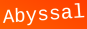
Abyssal